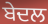
ਬੇਦਲ